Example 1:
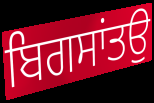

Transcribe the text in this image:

ਬਿਗਸਾਂਤਉ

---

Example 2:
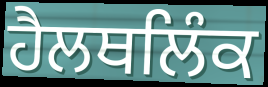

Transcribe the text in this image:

ਹੈਲਥਲਿੰਕ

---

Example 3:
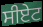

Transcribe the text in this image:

ਸੀਏਟ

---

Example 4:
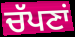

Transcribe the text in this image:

ਚੱਪਣਾਂ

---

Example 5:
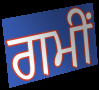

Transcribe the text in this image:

ਗਮੀਂ